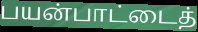
பயன்பாட்டைத்